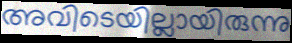
അവിടെയില്ലായിരുന്നു